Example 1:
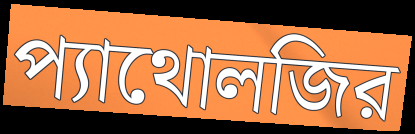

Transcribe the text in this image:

প্যাথোলজির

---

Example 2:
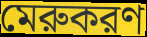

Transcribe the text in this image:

মেরুকরণ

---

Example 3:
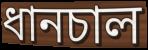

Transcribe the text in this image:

ধানচাল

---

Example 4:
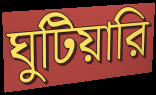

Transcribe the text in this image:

ঘুটিয়ারি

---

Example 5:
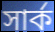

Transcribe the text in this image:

সার্ক